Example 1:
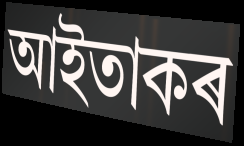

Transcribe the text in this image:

আইতাকৰ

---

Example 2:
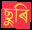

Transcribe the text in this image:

ছুৰি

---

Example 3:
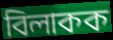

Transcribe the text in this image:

বিলাকক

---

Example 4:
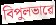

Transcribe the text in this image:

বিপুলভাৱে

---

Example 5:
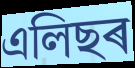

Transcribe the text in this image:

এলিছৰ